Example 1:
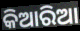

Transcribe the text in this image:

କିଆରିଆ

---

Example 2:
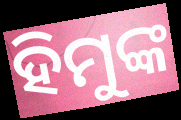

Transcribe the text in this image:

ହିମୁଙ୍କ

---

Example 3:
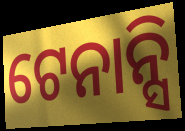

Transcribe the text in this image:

ଟେନାନ୍ସି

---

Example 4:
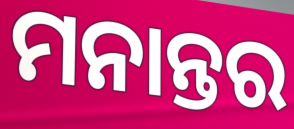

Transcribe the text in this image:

ମନାନ୍ତର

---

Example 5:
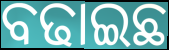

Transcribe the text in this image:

ବଢାଇଛ